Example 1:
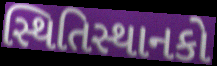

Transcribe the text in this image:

સ્થિતિસ્થાનકો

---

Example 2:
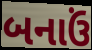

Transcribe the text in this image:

બનાઉં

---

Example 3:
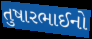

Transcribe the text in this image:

તુષારભાઈનો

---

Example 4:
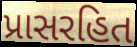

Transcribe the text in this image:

પ્રાસરહિત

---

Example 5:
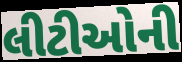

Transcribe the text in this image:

લીટીઓની